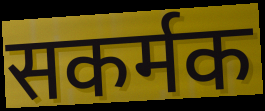
सकर्मक